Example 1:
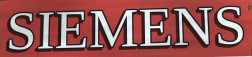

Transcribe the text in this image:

SIEMENS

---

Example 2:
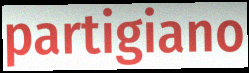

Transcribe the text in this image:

partigiano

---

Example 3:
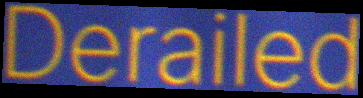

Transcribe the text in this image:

Derailed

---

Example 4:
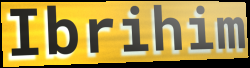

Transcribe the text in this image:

Ibrihim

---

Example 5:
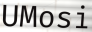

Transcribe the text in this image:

UMosi